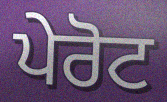
ਪੇਰੋਟ